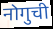
नोगुची